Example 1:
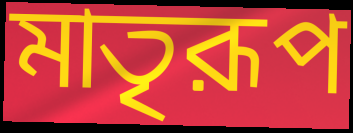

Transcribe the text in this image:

মাতৃরূপ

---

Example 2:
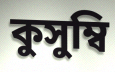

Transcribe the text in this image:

কুসুম্বি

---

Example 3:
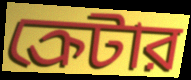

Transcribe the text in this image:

ক্রেটার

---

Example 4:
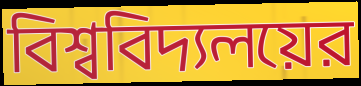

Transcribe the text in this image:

বিশ্ববিদ্যলয়ের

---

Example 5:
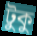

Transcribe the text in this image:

টুকু